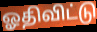
ஓதிவிட்டு